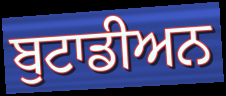
ਬੁਟਾਡੀਅਨ